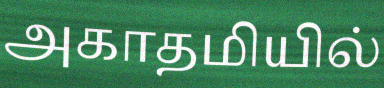
அகாதமியில்